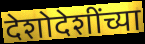
देशोदेशींच्या